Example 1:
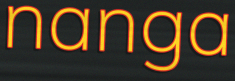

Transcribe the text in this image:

nanga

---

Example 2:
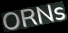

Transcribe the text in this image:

ORNs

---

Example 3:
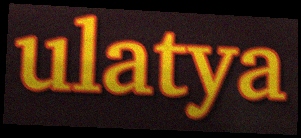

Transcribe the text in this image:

ulatya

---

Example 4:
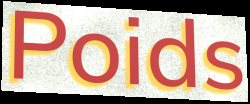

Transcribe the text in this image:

Poids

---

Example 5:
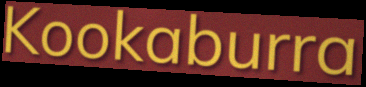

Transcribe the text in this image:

Kookaburra